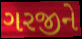
ગરજીને